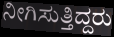
ನೀಗಿಸುತ್ತಿದ್ದರು